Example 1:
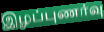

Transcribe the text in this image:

இழப்புணர்வு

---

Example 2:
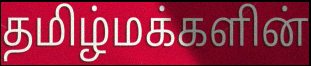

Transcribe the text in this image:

தமிழ்மக்களின்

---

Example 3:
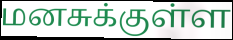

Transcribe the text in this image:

மனசுக்குள்ள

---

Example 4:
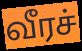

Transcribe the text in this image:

வீரச்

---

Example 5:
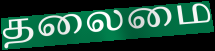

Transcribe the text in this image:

தலைமை